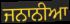
ਜਨਾਨੀਆ